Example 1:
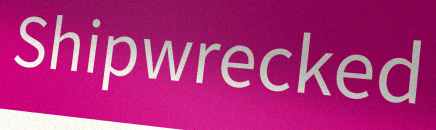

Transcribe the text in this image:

Shipwrecked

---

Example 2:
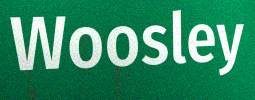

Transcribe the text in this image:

Woosley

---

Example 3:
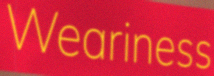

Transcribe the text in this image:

Weariness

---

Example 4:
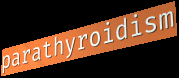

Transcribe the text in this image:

parathyroidism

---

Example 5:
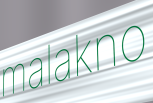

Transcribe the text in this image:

malakno